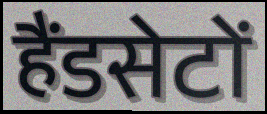
हैंडसेटों